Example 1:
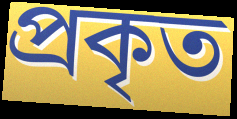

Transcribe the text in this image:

প্ৰকৃত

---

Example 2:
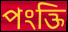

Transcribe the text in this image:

পংক্তি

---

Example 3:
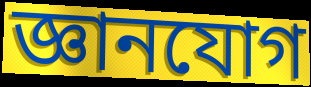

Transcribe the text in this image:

জ্ঞানযোগ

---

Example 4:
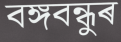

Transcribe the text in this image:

বঙ্গবন্ধুৰ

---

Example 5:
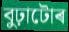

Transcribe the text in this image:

বুঢ়াটোৰ